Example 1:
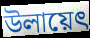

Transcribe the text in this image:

উলায়েৎ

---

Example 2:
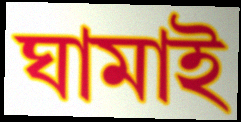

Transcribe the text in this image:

ঘামাই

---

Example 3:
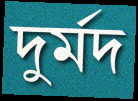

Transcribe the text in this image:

দুর্মদ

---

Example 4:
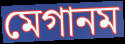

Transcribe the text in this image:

মেগানম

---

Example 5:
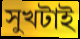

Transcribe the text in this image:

সুখটাই